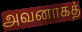
அவனாகத்